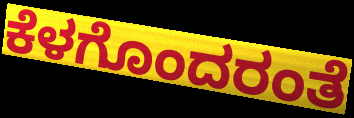
ಕೆಳಗೊಂದರಂತೆ